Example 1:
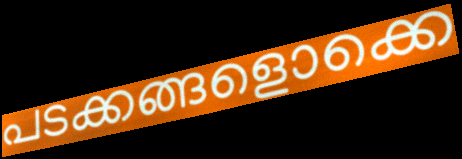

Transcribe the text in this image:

പടക്കങ്ങളൊക്കെ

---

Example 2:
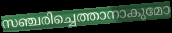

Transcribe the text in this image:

സഞ്ചരിച്ചെത്താനാകുമോ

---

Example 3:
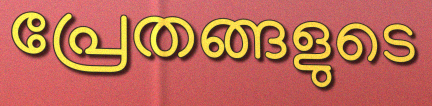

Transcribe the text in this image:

പ്രേതങ്ങളുടെ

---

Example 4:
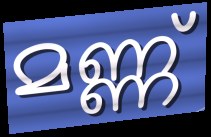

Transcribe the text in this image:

മണ്ണ്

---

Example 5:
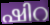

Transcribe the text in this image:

ഷിറ